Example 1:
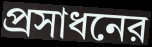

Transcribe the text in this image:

প্রসাধনের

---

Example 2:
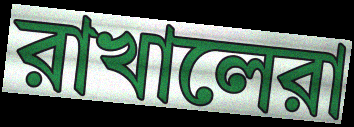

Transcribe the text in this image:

রাখালেরা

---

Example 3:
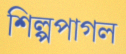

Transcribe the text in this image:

শিল্পপাগল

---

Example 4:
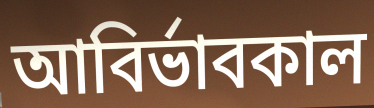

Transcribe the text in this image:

আবির্ভাবকাল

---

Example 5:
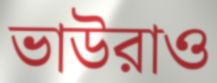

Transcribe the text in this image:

ভাউরাও